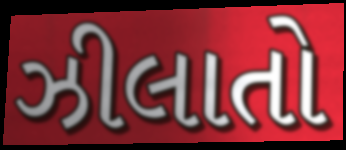
ઝીલાતો